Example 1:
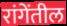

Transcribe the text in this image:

रांगेंतील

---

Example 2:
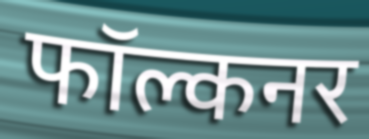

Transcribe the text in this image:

फॉल्कनर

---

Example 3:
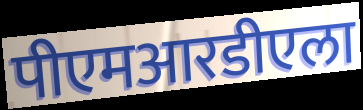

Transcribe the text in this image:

पीएमआरडीएला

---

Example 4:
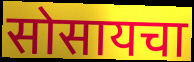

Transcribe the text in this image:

सोसायचा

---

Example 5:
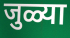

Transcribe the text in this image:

जुळ्या